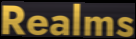
Realms